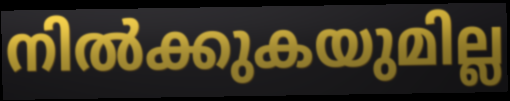
നിൽക്കുകയുമില്ല